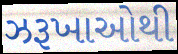
ઝરૂખાઓથી